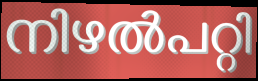
നിഴൽപറ്റി